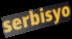
serbisyo